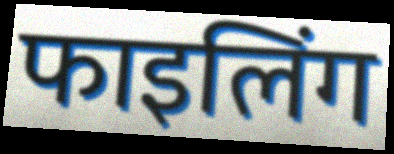
फाइलिंग